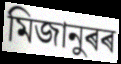
মিজানুৰৰ